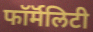
फॉर्मॅलिटी